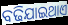
ବଢିଯାଇଥାଏ